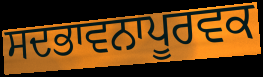
ਸਦਭਾਵਨਾਪੂਰਵਕ